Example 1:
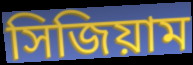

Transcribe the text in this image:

সিজিয়াম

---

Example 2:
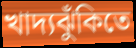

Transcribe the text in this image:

খাদ্যঝুঁকিতে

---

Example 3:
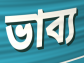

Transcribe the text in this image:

ভাব্য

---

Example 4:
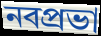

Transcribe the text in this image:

নবপ্রভা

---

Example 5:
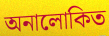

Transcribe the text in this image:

অনালোকিত